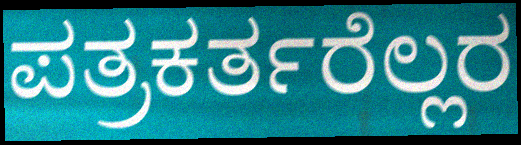
ಪತ್ರಕರ್ತರೆಲ್ಲರ